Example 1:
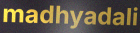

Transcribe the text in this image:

madhyadali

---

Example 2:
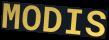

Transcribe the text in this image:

MODIS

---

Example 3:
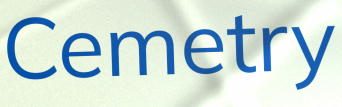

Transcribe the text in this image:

Cemetry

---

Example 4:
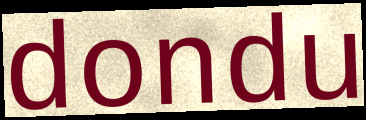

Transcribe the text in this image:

dondu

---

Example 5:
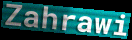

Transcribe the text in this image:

Zahrawi